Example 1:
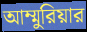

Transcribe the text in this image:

আম্মুরিয়ার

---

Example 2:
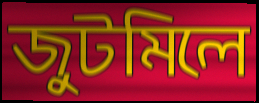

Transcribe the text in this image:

জুটমিলে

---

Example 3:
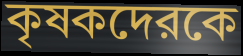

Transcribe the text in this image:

কৃষকদেরকে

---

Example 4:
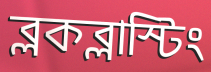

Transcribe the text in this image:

ব্লকব্লাস্টিং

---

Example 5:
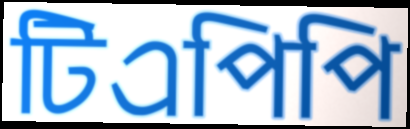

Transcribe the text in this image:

টিএপিপি